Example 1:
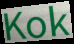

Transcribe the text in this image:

Kok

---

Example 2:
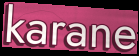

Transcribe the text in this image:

karane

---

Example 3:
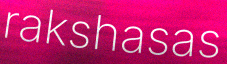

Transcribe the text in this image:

rakshasas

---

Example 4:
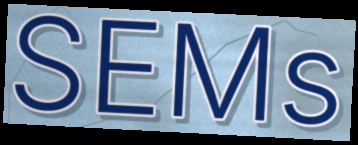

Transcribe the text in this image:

SEMs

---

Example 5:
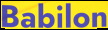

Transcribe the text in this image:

Babilon